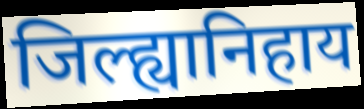
जिल्ह्यानिहाय